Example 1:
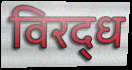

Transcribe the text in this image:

विरद्ध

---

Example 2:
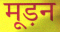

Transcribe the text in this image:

मूड़न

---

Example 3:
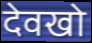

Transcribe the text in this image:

देवखो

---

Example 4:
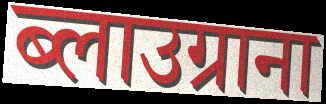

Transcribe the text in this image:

ब्लाउग्राना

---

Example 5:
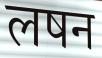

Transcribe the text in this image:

लषन